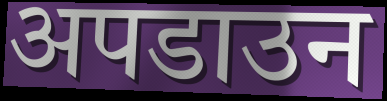
अपडाउन